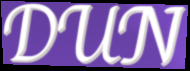
DUN